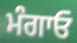
ਮੰਗਾਓ